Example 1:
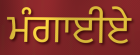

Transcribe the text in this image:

ਮੰਗਾਈਏ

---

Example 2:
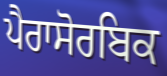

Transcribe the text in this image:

ਪੈਰਾਸੋਰਬਿਕ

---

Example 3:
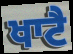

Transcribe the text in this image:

ਖਾਟੈ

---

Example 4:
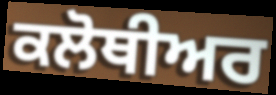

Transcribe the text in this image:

ਕਲੋਥੀਅਰ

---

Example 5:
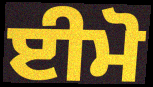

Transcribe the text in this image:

ਈਮੋ